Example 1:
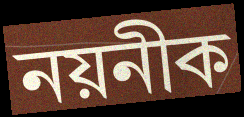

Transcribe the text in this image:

নয়নীক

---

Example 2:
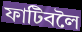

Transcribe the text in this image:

ফাটিবলৈ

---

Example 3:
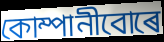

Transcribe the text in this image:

কোম্পানীবোৰে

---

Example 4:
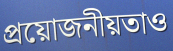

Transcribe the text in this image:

প্ৰয়োজনীয়তাও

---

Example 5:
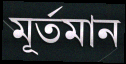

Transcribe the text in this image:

মূৰ্তমান